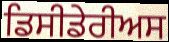
ਡਿਸੀਡੇਰੀਅਸ